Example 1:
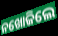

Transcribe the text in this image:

ନଖୋଜିଲେ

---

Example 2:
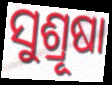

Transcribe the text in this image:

ସୁଶ୍ରୂଷା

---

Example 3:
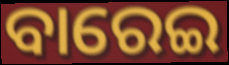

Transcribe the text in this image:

ବାରେଇ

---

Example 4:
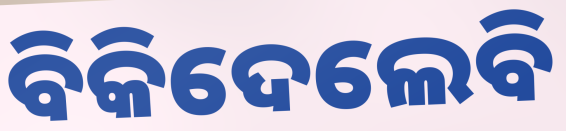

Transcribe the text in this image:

ବିକିଦେଲେବି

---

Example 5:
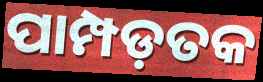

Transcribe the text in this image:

ପାମ୍ପଡ଼ତକ